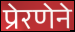
प्रेरणेने